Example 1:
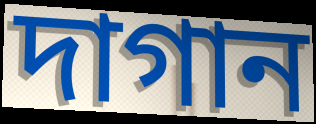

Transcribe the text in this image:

দাগান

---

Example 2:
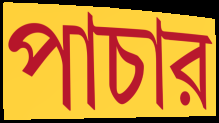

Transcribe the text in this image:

পাচার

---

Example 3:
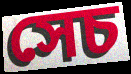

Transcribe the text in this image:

সেচ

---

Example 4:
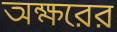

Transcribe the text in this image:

অক্ষরের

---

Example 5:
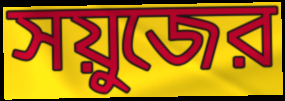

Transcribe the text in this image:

সয়ুজের